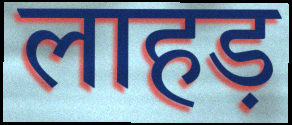
लाहड़